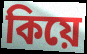
কিয়ে